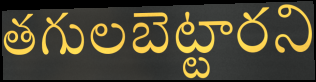
తగులబెట్టారని